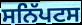
ਸਨਿੱਪਟਸ